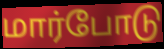
மார்போடு